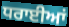
ਧਰਾਈਆਂ